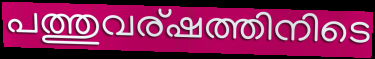
പത്തുവര്ഷത്തിനിടെ